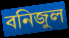
বনিজুল